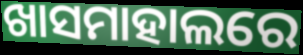
ଖାସମାହାଲରେ